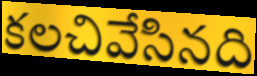
కలచివేసినది